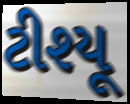
ટીશ્યૂ